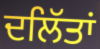
ਦਲਿੱਤਾਂ